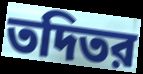
তদিতর